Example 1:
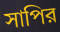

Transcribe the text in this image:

সাপির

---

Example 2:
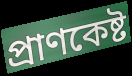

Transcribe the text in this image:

প্রাণকেষ্ট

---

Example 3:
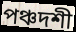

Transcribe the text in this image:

পঞ্চদশী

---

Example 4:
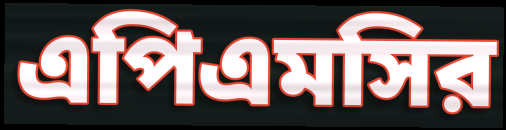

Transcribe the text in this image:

এপিএমসির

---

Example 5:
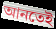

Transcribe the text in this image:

আনতেই